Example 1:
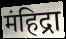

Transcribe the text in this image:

मंहिद्रा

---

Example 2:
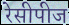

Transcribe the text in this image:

रेसीपीज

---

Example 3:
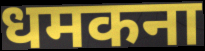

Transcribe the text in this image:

धमकना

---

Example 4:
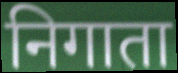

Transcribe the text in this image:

निगाता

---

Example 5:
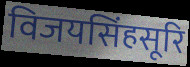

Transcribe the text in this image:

विजयसिंहसूरि